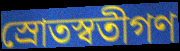
স্রোতস্বতীগণ